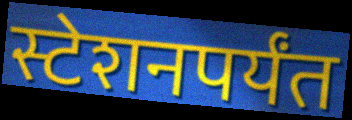
स्टेशनपर्यंत